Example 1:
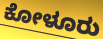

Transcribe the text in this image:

ಕೋಳೂರು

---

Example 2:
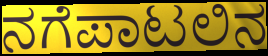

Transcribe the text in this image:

ನಗೆಪಾಟಲಿನ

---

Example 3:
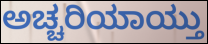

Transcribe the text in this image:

ಅಚ್ಚರಿಯಾಯ್ತು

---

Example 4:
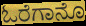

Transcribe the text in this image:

ಓರೆಗಾನೊ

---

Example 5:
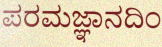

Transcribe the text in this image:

ಪರಮಜ್ಞಾನದಿಂ